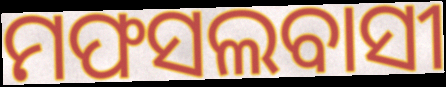
ମଫସଲବାସୀ